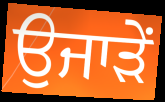
ਉਜਾੜੇਂ